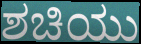
ಶಚಿಯು